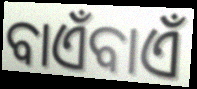
ବାଏଁବାଏଁ